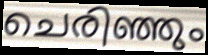
ചെരിഞ്ഞും